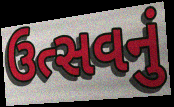
ઉત્સવનું